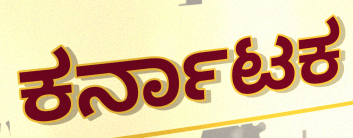
ಕರ್ನಾಟಕ